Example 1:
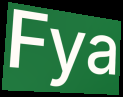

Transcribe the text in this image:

Fya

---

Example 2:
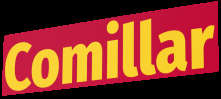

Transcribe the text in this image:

Comillar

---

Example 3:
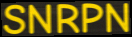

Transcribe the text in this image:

SNRPN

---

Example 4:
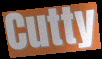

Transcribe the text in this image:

Cutty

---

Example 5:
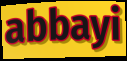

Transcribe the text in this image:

abbayi